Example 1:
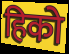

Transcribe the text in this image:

हिको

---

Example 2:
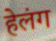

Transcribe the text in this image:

हेलंग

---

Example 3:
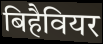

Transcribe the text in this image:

बिहैवियर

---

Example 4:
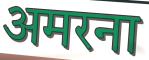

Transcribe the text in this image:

अमरना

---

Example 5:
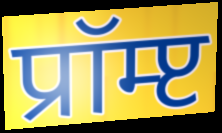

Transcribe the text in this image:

प्रॉम्प्ट